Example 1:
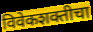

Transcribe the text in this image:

विवेकशक्तीचा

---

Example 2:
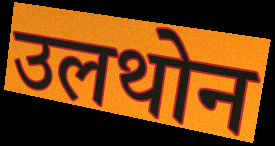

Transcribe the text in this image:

उलथोन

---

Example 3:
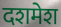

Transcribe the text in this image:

दशमेश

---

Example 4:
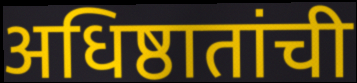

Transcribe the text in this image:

अधिष्ठातांची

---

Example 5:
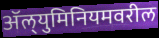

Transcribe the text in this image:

ॲल्युमिनियमवरील